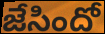
జేసిందో